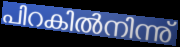
പിറകിൽനിന്നു്